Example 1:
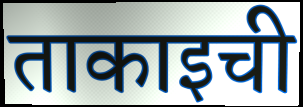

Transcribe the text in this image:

ताकाइची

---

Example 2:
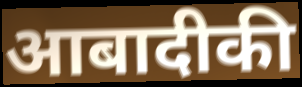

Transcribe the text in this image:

आबादीकी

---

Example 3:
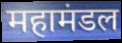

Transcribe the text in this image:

महामंडल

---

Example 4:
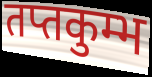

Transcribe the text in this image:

तप्तकुम्भ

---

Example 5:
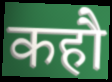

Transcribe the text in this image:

कहौ